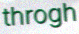
throgh